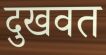
दुखवत